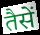
तैसें